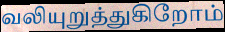
வலியுறுத்துகிறோம்